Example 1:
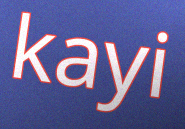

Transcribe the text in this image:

kayi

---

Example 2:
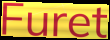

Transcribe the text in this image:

Furet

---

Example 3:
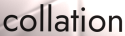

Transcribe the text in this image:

collation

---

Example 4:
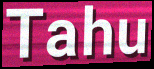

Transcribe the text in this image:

Tahu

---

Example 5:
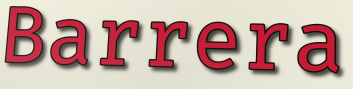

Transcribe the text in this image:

Barrera